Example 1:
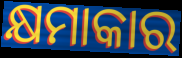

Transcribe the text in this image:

କ୍ଷମାକାର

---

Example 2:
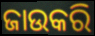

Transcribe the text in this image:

ଜାଉକରି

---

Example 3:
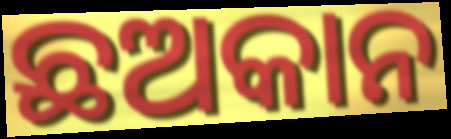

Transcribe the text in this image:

ଛଅକାନ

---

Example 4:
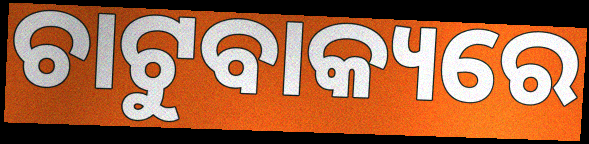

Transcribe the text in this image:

ଚାଟୁବାକ୍ୟରେ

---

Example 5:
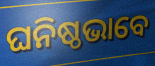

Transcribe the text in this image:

ଘନିଷ୍ଠଭାବେ